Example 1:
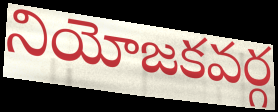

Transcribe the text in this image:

నియోజకవర్గ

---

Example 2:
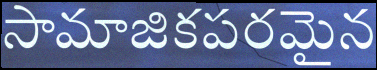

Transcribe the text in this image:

సామాజికపరమైన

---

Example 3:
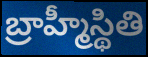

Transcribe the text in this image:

బ్రాహ్మీస్థితి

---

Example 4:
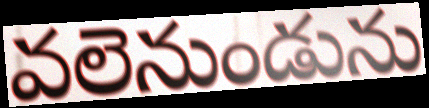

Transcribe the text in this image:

వలెనుండును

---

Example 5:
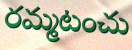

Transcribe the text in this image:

రమ్మటంచు